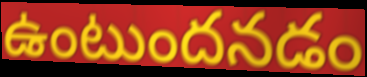
ఉంటుందనడం